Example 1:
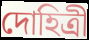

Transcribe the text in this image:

দোহিত্রী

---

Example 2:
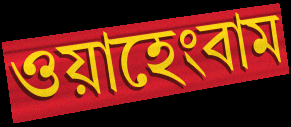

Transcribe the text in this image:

ওয়াহেংবাম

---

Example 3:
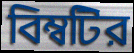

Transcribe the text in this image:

বিম্বটির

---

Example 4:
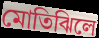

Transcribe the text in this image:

মোতিঝিলে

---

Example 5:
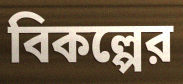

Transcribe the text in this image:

বিকল্পের